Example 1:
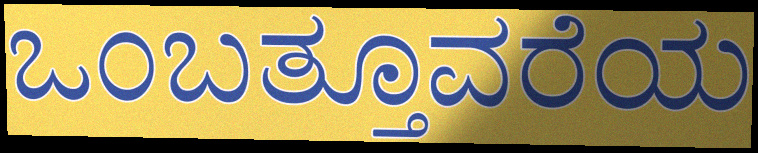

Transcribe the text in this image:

ಒಂಬತ್ತೂವರೆಯ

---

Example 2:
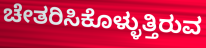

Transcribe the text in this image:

ಚೇತರಿಸಿಕೊಳ್ಳುತ್ತಿರುವ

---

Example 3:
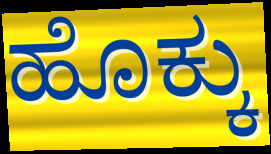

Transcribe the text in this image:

ಹೊಕ್ಕು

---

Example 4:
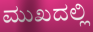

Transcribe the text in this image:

ಮುಖದಲ್ಲಿ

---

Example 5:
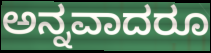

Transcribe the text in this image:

ಅನ್ನವಾದರೂ